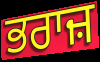
ਭਰਾਜ਼